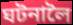
ঘটনালৈ